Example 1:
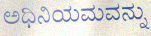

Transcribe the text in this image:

ಅಧಿನಿಯಮವನ್ನು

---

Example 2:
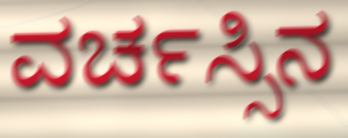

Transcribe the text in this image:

ವರ್ಚಸ್ಸಿನ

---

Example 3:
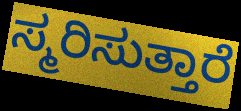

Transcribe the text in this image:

ಸ್ಮರಿಸುತ್ತಾರೆ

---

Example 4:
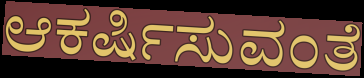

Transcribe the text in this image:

ಆಕರ್ಷಿಸುವಂತೆ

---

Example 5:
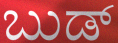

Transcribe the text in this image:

ಬುಡ್